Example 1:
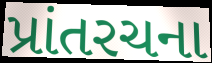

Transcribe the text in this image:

પ્રાંતરચના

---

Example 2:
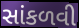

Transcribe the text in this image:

સાંકળવી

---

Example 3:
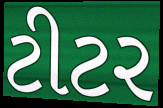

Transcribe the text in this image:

ટીટર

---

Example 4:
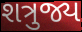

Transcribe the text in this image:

શત્રુજ્ય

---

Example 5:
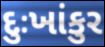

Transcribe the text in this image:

દુઃખાંકુર